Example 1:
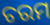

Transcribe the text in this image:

ଚରମ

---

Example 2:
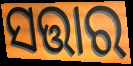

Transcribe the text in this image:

ସତ୍ତାର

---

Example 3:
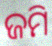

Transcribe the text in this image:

ଜମି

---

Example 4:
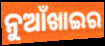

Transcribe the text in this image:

ନୁଆଁଖାଇର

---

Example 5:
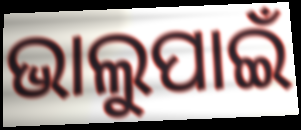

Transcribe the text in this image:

ଭାଲୁପାଇଁ